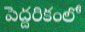
పెద్దరికంలో